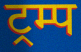
ट्रम्‍प